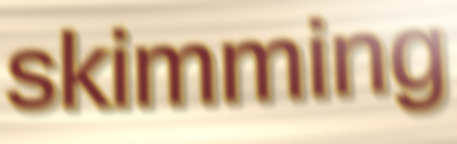
skimming